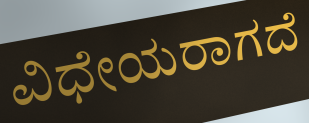
ವಿಧೇಯರಾಗದೆ